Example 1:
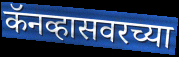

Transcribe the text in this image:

कॅनव्हासवरच्या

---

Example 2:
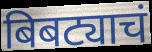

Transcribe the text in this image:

बिबट्याचं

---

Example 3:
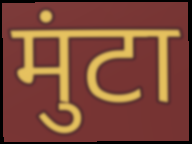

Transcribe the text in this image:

मुंटा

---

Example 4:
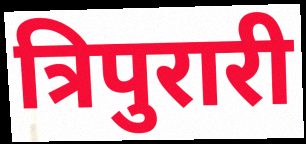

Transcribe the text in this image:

त्रिपुरारी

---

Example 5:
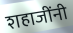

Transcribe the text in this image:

शहाजींनी